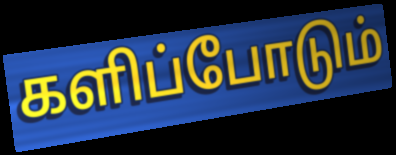
களிப்போடும்